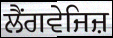
ਲੈਂਗਵੇਜਿਜ਼